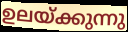
ഉലയ്ക്കുന്നു